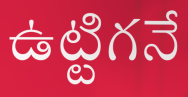
ఉట్టిగనే